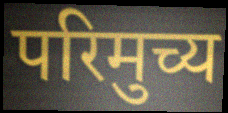
परिमुच्य